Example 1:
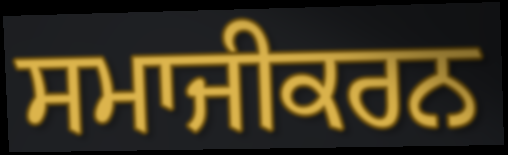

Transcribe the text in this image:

ਸਮਾਜੀਕਰਨ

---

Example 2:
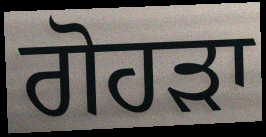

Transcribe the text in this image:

ਗੋਹੜਾ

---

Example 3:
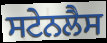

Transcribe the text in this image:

ਸਟੇਨਲੈਸ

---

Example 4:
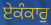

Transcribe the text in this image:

ਏਕੰਕਾਰੁ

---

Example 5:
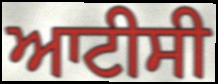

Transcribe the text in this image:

ਆਟੀਸੀ